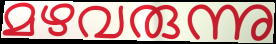
മഴവരുന്നു